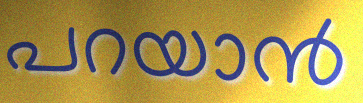
പറയാൻ